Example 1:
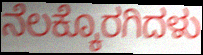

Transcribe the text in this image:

ನೆಲಕ್ಕೊರಗಿದಳು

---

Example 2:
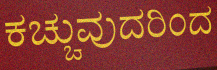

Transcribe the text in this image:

ಕಚ್ಚುವುದರಿಂದ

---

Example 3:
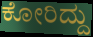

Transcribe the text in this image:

ಕೋರಿದ್ದು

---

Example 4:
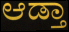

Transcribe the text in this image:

ಆಡ್ತಾ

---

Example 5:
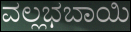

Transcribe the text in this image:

ವಲ್ಲಭಬಾಯಿ